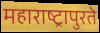
महाराष्ट्रापुरते